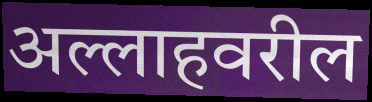
अल्लाहवरील